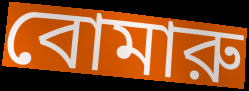
বোমারু